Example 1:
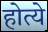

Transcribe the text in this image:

होत्ये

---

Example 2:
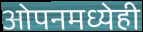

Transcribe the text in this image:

ओपनमध्येही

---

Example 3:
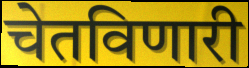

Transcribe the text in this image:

चेतविणारी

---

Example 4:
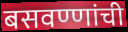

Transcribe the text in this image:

बसवण्णांची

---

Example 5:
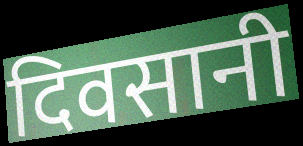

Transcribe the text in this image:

दिवसानी